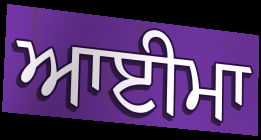
ਆਈਮਾ